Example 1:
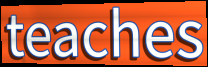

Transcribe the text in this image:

teaches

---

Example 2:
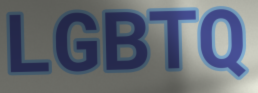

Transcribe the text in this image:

LGBTQ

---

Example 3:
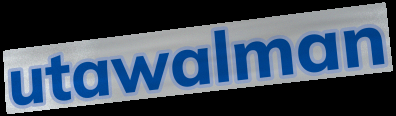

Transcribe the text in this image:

utawalman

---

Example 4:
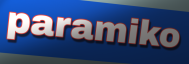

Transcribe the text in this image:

paramiko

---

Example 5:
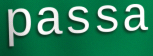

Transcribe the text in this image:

passa